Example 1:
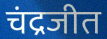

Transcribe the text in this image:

चंद्रजीत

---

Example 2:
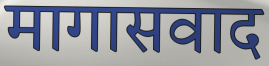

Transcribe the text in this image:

मागासवाद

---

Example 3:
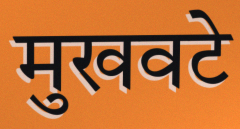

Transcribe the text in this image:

मुखवटे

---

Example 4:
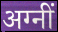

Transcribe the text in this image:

अग्नीं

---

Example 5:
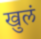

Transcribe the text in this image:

खुलं